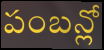
పంబన్లో